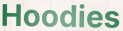
Hoodies